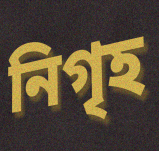
নিগৃহ